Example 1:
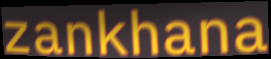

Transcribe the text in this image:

zankhana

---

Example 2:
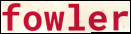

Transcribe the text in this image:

fowler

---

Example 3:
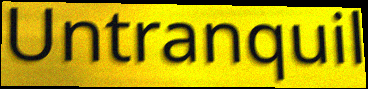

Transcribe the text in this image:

Untranquil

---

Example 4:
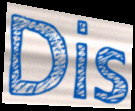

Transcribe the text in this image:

Dis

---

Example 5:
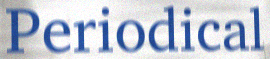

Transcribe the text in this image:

Periodical